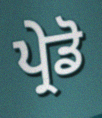
ਪ੍ਰੇਡੋ